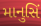
માનુસિં